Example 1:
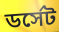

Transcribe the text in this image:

ডর্সেট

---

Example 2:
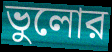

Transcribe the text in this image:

ভুলোর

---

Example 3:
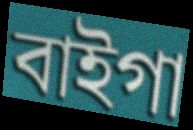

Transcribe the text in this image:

বাইগা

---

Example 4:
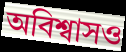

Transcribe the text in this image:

অবিশ্বাসও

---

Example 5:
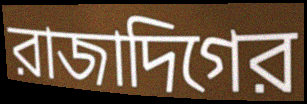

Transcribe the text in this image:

রাজাদিগের